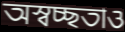
অস্বচ্ছতাও